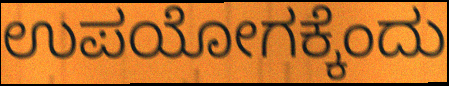
ಉಪಯೋಗಕ್ಕೆಂದು